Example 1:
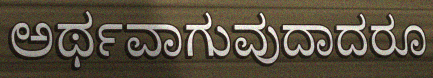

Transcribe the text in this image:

ಅರ್ಥವಾಗುವುದಾದರೂ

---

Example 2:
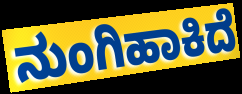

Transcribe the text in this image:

ನುಂಗಿಹಾಕಿದೆ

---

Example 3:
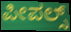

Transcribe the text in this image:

ಪೀಪಲ್ಸ್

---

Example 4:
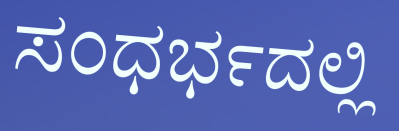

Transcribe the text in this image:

ಸಂಧರ್ಭದಲ್ಲಿ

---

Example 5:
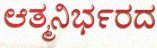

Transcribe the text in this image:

ಆತ್ಮನಿರ್ಭರದ